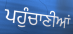
ਪਹੁੰਚਾਣੀਆਂ